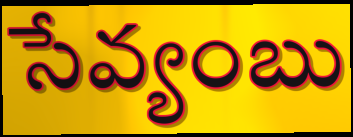
సేవ్యంబు